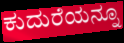
ಕುದುರೆಯನ್ನೂ